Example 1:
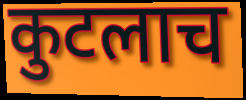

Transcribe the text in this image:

कुटलाच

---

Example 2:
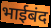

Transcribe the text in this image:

भाईबंद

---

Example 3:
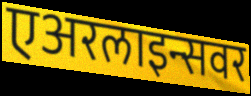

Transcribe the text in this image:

एअरलाइन्सवर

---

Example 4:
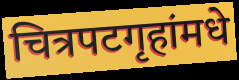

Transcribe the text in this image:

चित्रपटगृहांमधे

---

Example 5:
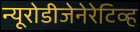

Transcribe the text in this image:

न्यूरोडीजेनेरेटिव्ह